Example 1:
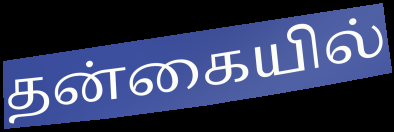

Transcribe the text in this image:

தன்கையில்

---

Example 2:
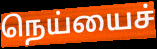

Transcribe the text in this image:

நெய்யைச்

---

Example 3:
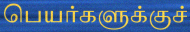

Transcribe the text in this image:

பெயர்களுக்குச்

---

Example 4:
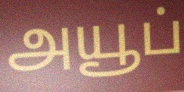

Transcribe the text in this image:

அயூப்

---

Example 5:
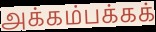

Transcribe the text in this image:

அக்கம்பக்கக்